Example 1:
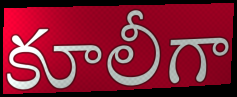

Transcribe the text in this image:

కూలీగా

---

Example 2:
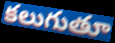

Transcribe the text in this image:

కలుగుతూ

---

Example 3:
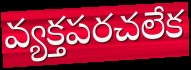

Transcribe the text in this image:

వ్యక్తపరచలేక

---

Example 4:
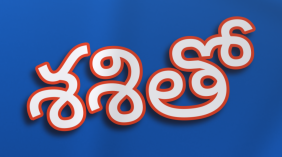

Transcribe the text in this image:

శశితో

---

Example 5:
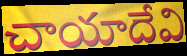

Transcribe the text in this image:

చాయాదేవి